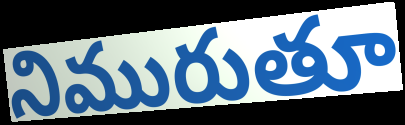
నిమురుతూ